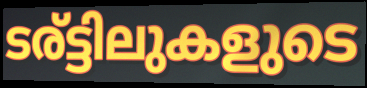
ടര്ട്ടിലുകളുടെ